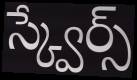
స్క్వేర్స్